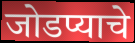
जोडप्याचे